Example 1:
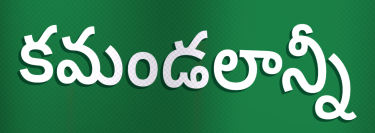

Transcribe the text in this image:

కమండలాన్నీ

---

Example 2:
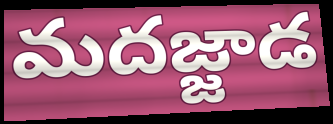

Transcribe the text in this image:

మదజ్జాడ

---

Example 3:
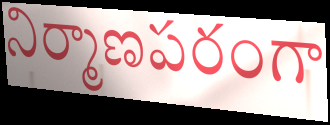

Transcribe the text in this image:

నిర్మాణపరంగా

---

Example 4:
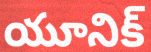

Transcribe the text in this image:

యూనిక్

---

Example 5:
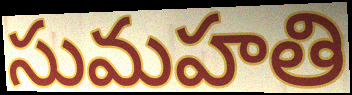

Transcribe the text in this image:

సుమహతి